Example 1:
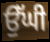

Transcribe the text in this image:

ਉੱਘੀ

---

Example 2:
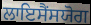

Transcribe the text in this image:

ਲਾਇਸੈਂਸਯੋਗ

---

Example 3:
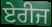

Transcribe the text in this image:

ਏਰੀਜ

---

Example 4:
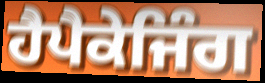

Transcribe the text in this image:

ਹੈਪੈਕੇਜਿੰਗ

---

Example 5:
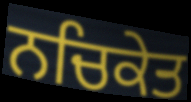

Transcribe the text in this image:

ਨਚਿਕੇਤ